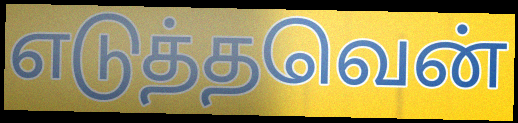
எடுத்தவென்